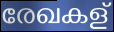
രേഖകള്